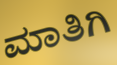
ಮಾತಿಗಿ